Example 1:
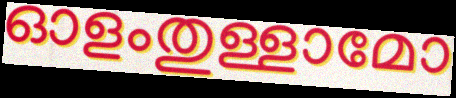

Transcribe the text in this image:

ഓളംതുള്ളാമോ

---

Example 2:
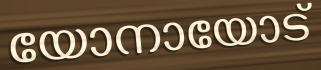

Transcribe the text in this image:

യോനായോട്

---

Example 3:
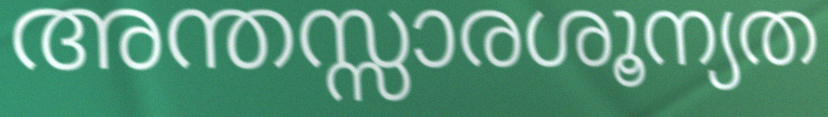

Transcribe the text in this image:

അന്തസ്സാരശൂന്യത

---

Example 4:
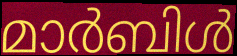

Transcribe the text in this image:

മാർബിൾ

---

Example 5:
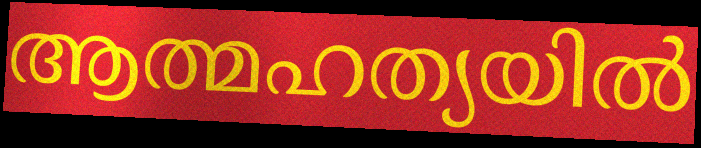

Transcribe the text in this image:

ആത്മഹത്യയിൽ